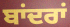
ਬਾਂਦਰਾਂ